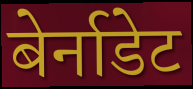
बेर्नाडेट